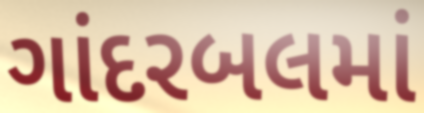
ગાંદરબલમાં